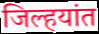
जिल्हयांत